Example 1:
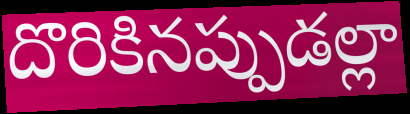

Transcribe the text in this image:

దొరికినప్పుడల్లా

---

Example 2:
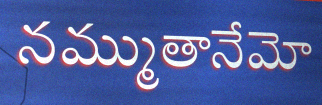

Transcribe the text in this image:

నమ్ముతానేమో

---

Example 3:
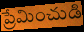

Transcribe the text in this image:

ప్రేమించుడి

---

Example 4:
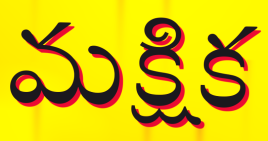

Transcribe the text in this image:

మక్షిక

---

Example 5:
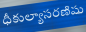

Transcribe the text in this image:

ధీకుల్యాసరణిషు